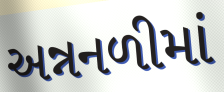
અન્નનળીમાં